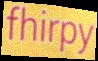
fhirpy